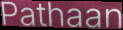
Pathaan